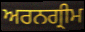
ਅਰਨਗ੍ਰੀਮ